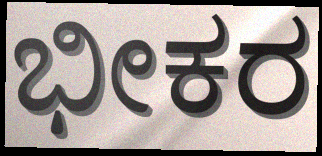
ಭೀಕರ